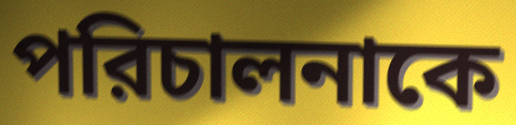
পরিচালনাকে